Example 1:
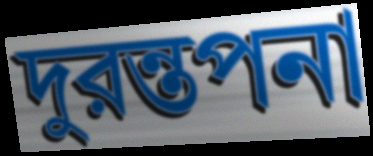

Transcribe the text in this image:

দুরন্তপনা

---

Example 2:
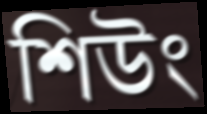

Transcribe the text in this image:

শিউং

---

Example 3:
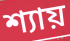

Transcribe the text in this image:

শ্যায়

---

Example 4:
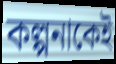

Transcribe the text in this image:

কল্পনাকেই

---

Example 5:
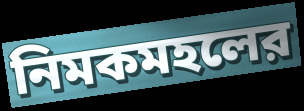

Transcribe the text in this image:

নিমকমহলের